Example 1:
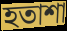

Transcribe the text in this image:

হতাশা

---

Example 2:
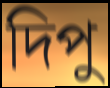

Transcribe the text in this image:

দিপু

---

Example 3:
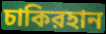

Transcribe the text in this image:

চাকিরহান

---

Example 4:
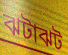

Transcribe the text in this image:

ঝটাঝট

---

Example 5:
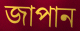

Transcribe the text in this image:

জাপান